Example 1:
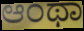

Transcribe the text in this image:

ಆಂಥಾ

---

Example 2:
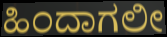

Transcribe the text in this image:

ಹಿಂದಾಗಲೀ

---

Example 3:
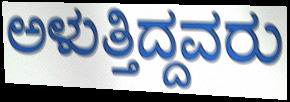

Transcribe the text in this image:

ಅಳುತ್ತಿದ್ದವರು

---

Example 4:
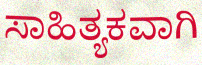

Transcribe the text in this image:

ಸಾಹಿತ್ಯಕವಾಗಿ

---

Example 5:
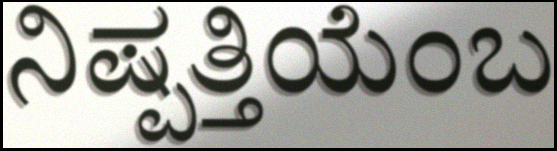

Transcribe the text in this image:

ನಿಷ್ಪತ್ತಿಯೆಂಬ